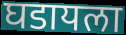
घडायला